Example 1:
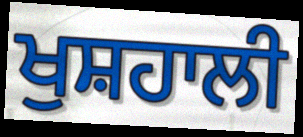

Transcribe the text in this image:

ਖੁਸ਼ਹਾਲੀ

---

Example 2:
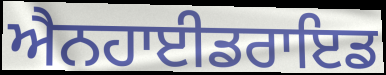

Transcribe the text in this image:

ਐਨਹਾਈਡਰਾਇਡ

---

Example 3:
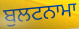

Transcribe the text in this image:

ਬੁਲਟਨਾਮਾ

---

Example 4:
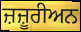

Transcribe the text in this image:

ਜ਼ਜ਼ੂਰੀਅਨ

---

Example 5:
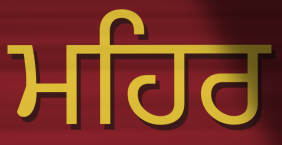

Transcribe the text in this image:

ਮਹਿਰ